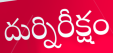
దుర్నిరీక్షం